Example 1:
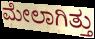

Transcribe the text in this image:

ಮೇಲಾಗಿತ್ತು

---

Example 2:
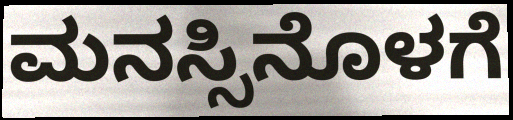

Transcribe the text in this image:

ಮನಸ್ಸಿನೊಳಗೆ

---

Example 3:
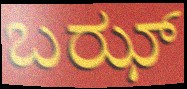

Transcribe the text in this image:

ಬಝ್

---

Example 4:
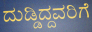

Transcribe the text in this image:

ದುಡ್ಡಿದ್ದವರಿಗೆ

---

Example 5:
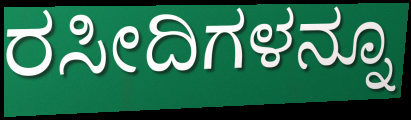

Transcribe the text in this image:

ರಸೀದಿಗಳನ್ನೂ